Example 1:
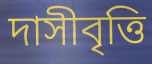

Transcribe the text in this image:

দাসীবৃত্তি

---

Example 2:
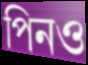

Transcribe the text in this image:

পিনও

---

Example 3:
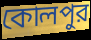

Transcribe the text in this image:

কোলপুর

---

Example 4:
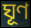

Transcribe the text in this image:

ঘূণ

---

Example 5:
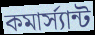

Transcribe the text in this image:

কমার্স্যান্ট